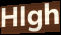
HIgh